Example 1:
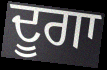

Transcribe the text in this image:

ਦੂਗਾ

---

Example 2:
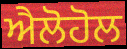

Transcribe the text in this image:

ਐਲੋਹੋਲ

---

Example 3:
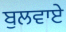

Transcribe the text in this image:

ਬੁਲਵਾਏ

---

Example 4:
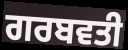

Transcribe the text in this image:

ਗਰਬਵਤੀ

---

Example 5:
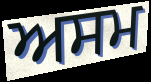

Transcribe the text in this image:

ਅਸਮ